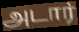
அடார்